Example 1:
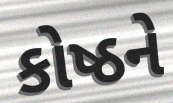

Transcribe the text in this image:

કોષ્ઠને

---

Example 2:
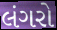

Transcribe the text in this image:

લંગરો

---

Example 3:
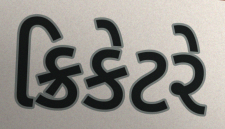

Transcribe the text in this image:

ક્રિકેટરે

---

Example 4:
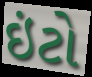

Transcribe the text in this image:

ઇંટો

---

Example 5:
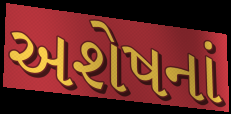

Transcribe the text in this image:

અશેષનાં